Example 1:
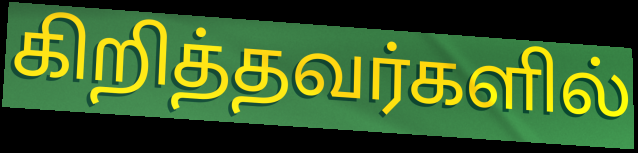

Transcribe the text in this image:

கிறித்தவர்களில்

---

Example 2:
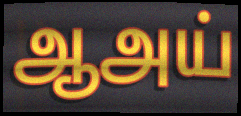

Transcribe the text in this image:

ஆஅய்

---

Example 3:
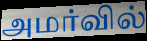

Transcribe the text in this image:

அமர்வில்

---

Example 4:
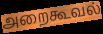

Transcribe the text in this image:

அறைகூவல்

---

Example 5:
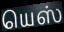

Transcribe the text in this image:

யெஸ்